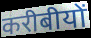
करीबीयों